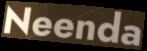
Neenda